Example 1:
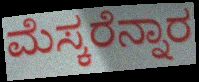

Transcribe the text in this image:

ಮೆಸ್ಕರೆನ್ನಾರ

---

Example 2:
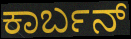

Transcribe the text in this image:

ಕಾರ್ಬನ್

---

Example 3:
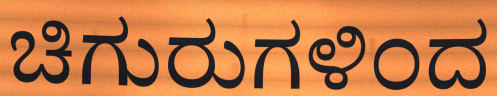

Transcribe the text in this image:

ಚಿಗುರುಗಳಿಂದ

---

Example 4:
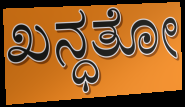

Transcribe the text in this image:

ಖನ್ಧತೋ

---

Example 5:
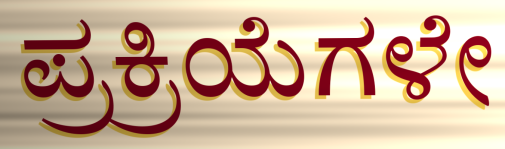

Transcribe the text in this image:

ಪ್ರಕ್ರಿಯೆಗಳೇ